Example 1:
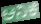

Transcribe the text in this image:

ಆನಿಕೆ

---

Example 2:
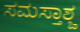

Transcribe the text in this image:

ಸಮಸ್ತಾಶ್ಚ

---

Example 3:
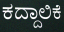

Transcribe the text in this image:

ಕದ್ದಾಲಿಕೆ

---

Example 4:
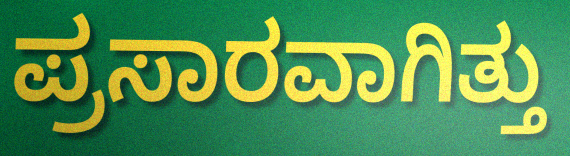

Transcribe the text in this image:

ಪ್ರಸಾರವಾಗಿತ್ತು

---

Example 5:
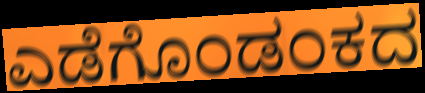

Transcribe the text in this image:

ಎಡೆಗೊಂಡಂಕದ